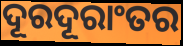
ଦୂରଦୂରାଂତର